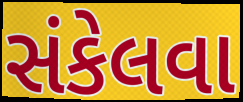
સંકેલવા